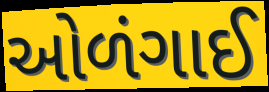
ઓળંગાઈ